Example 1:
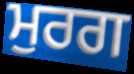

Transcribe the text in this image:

ਮੁਰਗ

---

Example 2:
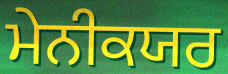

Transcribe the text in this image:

ਮੇਨੀਕਯਰ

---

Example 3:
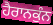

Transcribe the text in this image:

ਹੈਰਾਨਕੁੰਨ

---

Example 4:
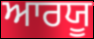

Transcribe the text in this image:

ਆਰਯੂ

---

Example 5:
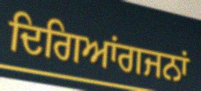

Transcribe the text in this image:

ਦਿਗਿਆਂਗਜਨਾਂ